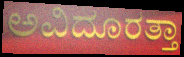
ಅವಿದೂರತ್ತಾ